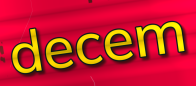
decem